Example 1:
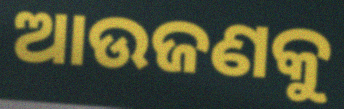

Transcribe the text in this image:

ଆଉଜଣକୁ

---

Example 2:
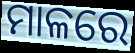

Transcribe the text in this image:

ମାଳରେ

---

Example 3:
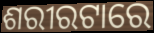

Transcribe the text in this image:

ଶରୀରଟାରେ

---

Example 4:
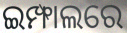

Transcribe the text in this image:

ଇମ୍ଫାଲରେ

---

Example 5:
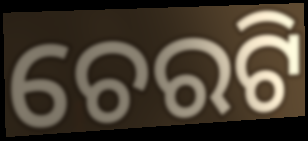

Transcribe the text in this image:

ଚେରଟି